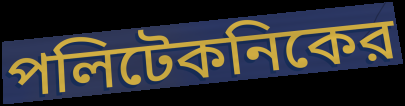
পলিটেকনিকের